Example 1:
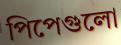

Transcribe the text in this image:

পিপেগুলো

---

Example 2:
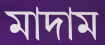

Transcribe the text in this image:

মাদাম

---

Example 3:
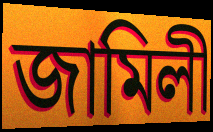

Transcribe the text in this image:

জামিলী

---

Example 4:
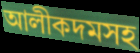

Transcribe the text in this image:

আলীকদমসহ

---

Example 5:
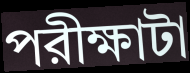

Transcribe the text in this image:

পরীক্ষাটা